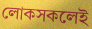
লোকসকলেই